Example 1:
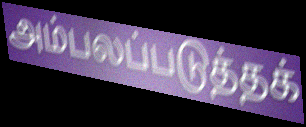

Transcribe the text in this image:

அம்பலப்படுத்தக்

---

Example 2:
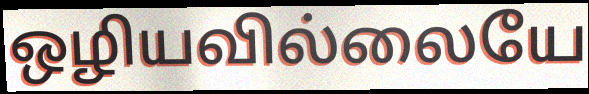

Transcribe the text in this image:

ஒழியவில்லையே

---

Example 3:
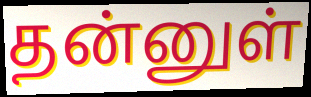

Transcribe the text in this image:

தன்னுள்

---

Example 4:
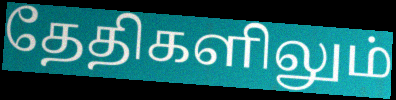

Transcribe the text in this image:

தேதிகளிலும்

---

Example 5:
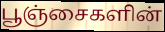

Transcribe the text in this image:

பூஞ்சைகளின்